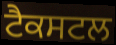
ਟੈਕਸਟਲ